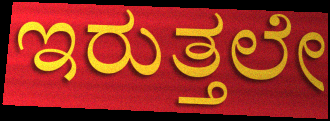
ಇರುತ್ತಲೇ